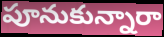
పూనుకున్నారా